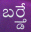
బర్త్డే